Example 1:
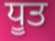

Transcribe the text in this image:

ਧੂਤ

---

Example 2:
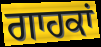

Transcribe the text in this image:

ਗਾਹਕਾਂ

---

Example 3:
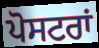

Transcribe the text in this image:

ਪੋਸਟਰਾਂ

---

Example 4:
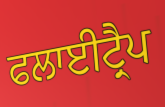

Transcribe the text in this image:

ਫਲਾਈਟ੍ਰੈਪ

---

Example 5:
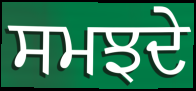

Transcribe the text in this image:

ਸਮਝਦੇ